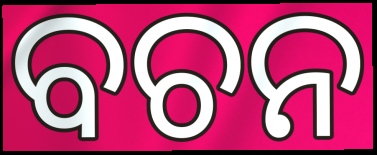
ବଚନ